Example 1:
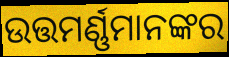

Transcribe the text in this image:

ଉତ୍ତମର୍ଣ୍ଣମାନଙ୍କର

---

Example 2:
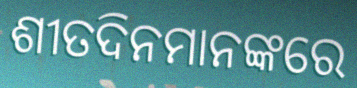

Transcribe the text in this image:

ଶୀତଦିନମାନଙ୍କରେ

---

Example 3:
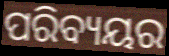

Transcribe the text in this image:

ପରିବ୍ୟୟର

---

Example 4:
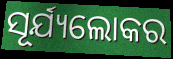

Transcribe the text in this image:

ସୂର୍ଯ୍ୟଲୋକର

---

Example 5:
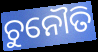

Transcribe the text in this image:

ଚୁନୌତି